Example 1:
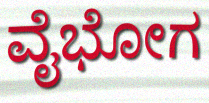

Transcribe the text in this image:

ವೈಭೋಗ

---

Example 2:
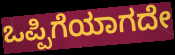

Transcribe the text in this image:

ಒಪ್ಪಿಗೆಯಾಗದೇ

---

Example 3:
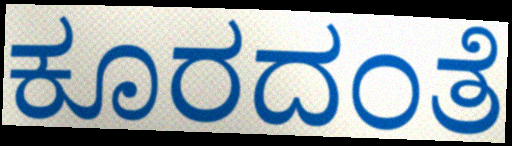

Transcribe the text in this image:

ಕೂರದಂತೆ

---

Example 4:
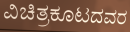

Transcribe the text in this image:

ವಿಚಿತ್ರಕೂಟದವರ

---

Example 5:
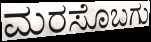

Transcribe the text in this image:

ಮರಸೊಬಗು